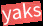
yaks